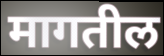
मागतील